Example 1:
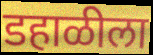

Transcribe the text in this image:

डहाळीला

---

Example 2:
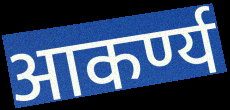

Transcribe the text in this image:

आकर्ण्य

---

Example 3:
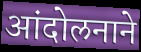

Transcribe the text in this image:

आंदोलनाने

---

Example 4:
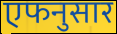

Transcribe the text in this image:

एफनुसार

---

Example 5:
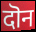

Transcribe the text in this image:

दॊन